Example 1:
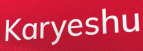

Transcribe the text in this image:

Karyeshu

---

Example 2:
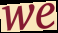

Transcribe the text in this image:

we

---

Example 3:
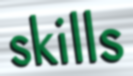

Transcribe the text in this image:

skills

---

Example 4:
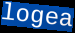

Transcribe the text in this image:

logea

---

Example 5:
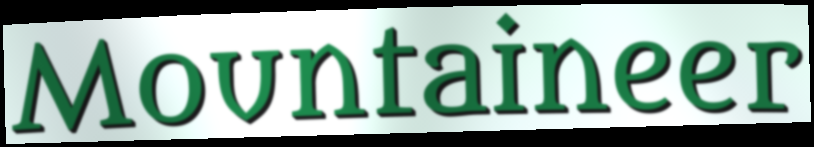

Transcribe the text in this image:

Mountaineer